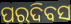
ପରଦିବସ